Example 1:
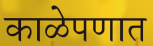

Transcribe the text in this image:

काळेपणात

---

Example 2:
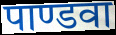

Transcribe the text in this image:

पाण्डवा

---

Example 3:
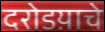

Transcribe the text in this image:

दरोडय़ाचे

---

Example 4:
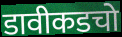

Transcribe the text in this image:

डावीकडचो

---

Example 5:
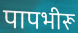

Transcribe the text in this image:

पापभीरू